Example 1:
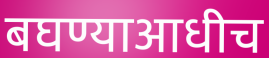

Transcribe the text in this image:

बघण्याआधीच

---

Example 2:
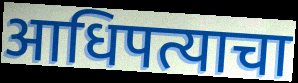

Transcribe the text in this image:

आधिपत्याचा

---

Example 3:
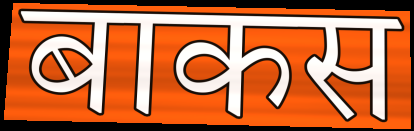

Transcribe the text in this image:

बाकस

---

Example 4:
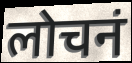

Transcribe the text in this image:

लोचनं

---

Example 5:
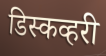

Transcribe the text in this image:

डिस्कव्हरी